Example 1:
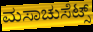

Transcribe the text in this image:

ಮಸಾಚುಸೆಟ್ಸ್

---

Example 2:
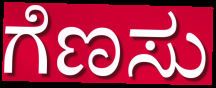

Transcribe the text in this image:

ಗೆಣಸು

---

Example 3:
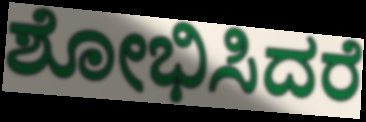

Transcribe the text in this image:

ಶೋಭಿಸಿದರೆ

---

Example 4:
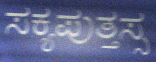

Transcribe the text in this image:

ಸಕ್ಯಪುತ್ತಸ್ಸ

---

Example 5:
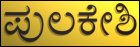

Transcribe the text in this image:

ಪುಲಕೇಶಿ